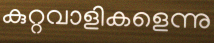
കുറ്റവാളികളെന്നു